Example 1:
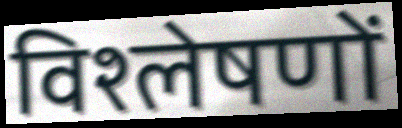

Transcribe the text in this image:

विश्लेषणों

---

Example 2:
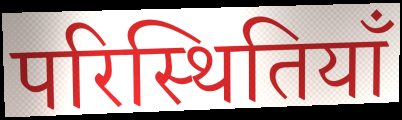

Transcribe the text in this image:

परिस्थितियाँ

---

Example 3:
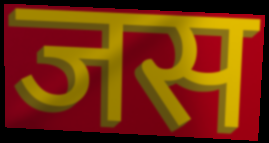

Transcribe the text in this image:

जस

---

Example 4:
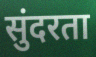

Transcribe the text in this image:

सुंदरता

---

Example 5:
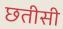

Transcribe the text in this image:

छतीसी